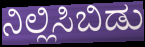
ನಿಲ್ಲಿಸಿಬಿಡು